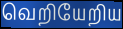
வெறியேறிய